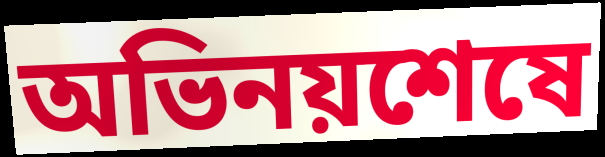
অভিনয়শেষে